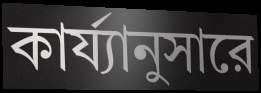
কার্য্যানুসারে